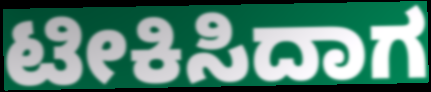
ಟೀಕಿಸಿದಾಗ